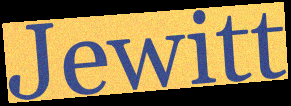
Jewitt